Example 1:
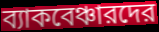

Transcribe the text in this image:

ব্যাকবেঞ্চারদের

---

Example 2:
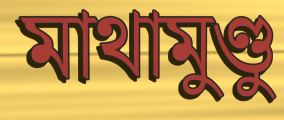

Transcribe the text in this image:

মাথামুণ্ডু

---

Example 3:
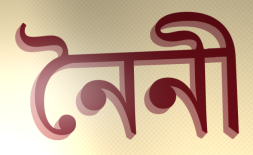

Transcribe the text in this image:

নৈনী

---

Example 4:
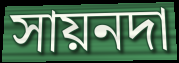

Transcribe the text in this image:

সায়নদা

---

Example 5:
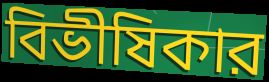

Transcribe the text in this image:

বিভীষিকার